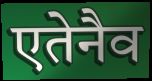
एतेनैव